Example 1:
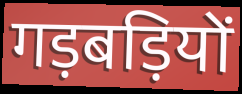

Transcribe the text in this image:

गड़बड़ियों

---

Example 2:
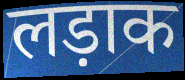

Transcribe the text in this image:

लड़ाक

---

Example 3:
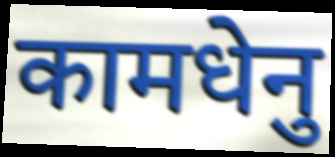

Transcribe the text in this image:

कामधेनु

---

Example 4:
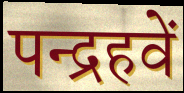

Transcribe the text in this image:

पन्द्रहवें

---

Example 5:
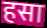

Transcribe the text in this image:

हसा